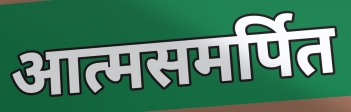
आत्मसमर्पित